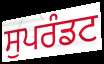
ਸੁਪਰੰਡਟ